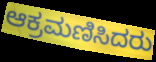
ಆಕ್ರಮಣಿಸಿದರು